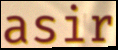
asir